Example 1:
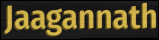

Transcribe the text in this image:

Jaagannath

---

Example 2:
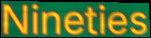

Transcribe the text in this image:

Nineties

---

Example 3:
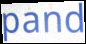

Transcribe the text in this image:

pand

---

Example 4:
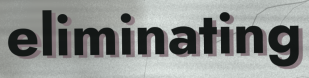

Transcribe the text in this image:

eliminating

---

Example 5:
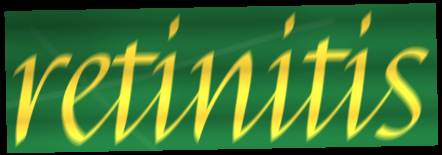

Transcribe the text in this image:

retinitis